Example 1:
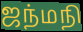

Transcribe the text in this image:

ஜந்மநி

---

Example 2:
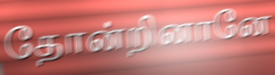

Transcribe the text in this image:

தோன்றினானே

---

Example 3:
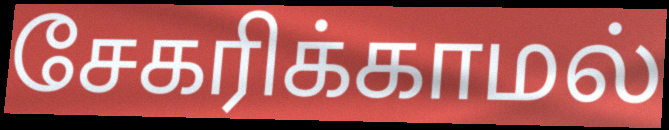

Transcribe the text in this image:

சேகரிக்காமல்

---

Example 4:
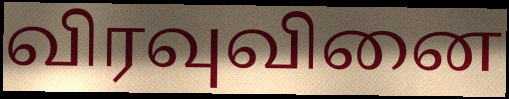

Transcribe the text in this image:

விரவுவினை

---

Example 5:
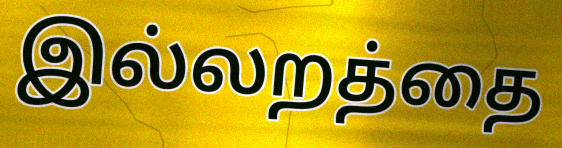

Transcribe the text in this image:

இல்லறத்தை